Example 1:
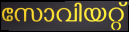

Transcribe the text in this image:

സോവിയറ്റ്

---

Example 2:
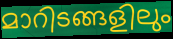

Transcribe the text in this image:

മാറിടങ്ങളിലും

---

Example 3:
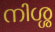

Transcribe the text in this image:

നിശ്ശ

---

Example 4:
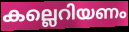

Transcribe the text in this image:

കല്ലെറിയണം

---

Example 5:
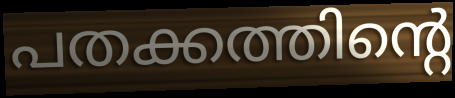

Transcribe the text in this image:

പതക്കത്തിന്റെ